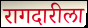
रागदारीला